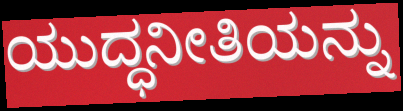
ಯುದ್ಧನೀತಿಯನ್ನು